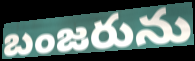
బంజరును